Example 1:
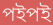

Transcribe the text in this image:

পইপই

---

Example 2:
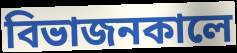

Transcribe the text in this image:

বিভাজনকালে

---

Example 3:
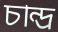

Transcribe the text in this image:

চান্দ্র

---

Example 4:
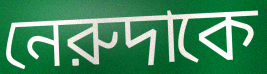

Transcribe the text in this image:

নেরুদাকে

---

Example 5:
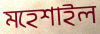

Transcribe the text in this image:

মহেশাইল